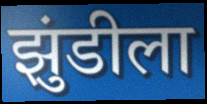
झुंडीला